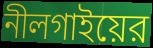
নীলগাইয়ের